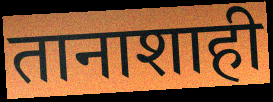
तानाशाही